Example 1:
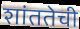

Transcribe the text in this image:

शांततेची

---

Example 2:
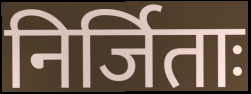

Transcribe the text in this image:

निर्जिताः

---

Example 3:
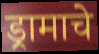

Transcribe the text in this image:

ड्रामाचे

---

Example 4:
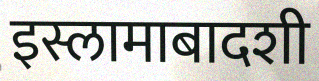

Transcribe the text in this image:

इस्लामाबादशी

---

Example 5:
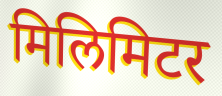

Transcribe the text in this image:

मिलिमिटर